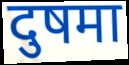
दुषमा